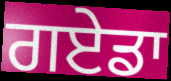
ਗਏਡਾ